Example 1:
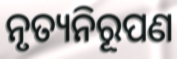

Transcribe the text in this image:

ନୃତ୍ୟନିରୂପଣ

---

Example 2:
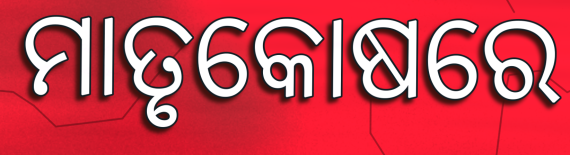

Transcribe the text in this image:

ମାତୃକୋଷରେ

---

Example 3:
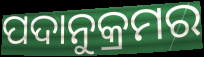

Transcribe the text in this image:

ପଦାନୁକ୍ରମର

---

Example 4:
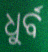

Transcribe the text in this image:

ଧୁର୍ବ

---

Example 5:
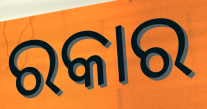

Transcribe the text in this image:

ରକାର